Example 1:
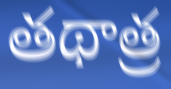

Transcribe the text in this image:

తథాత్ర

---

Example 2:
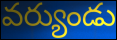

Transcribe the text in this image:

వర్యుండు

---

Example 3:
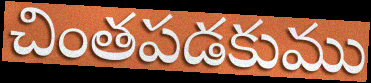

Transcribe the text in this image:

చింతపడకుము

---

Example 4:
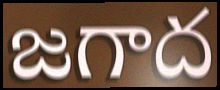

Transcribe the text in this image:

జగాద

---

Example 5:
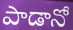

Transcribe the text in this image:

పాడానో